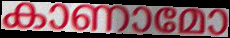
കാണാമോ